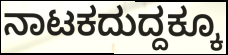
ನಾಟಕದುದ್ದಕ್ಕೂ